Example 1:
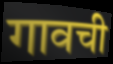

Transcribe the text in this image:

गावची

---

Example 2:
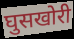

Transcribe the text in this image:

घुसखोरी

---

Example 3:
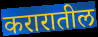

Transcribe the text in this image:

करारातील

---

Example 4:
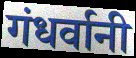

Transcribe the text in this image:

गंधर्वानी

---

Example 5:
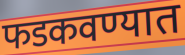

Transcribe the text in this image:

फडकवण्यात